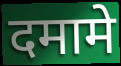
दमामे